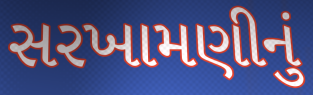
સરખામણીનું